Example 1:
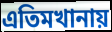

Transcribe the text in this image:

এতিমখানায়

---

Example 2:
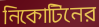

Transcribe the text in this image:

নিকোটিনের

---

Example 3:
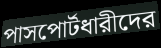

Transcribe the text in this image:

পাসপোর্টধারীদের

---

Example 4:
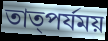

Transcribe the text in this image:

তাত্পর্যময়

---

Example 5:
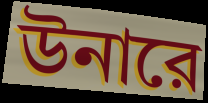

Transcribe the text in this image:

উনারে